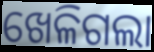
ଖେଳିଗଲା